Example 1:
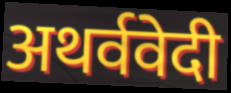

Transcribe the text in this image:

अथर्ववेदी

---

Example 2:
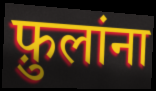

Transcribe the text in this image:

फ़ुलांना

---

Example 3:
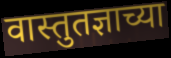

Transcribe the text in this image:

वास्तुतज्ञाच्या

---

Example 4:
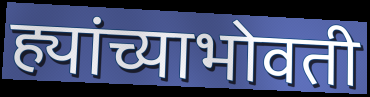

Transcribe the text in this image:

ह्यांच्याभोवती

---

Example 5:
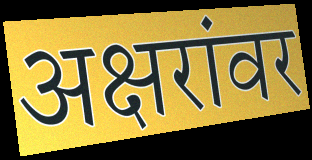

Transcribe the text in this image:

अक्षरांवर